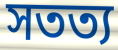
সতত্য